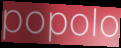
popolo